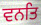
ਵਨਤਿ